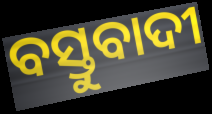
ବସ୍ତୁବାଦୀ